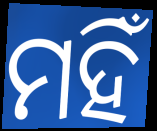
ମହିଁ